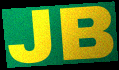
JB